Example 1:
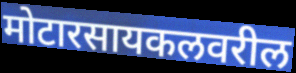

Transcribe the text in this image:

मोटारसायकलवरील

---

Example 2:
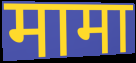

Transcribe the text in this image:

मामा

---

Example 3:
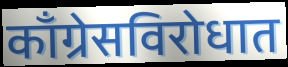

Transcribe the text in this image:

काँग्रेसविरोधात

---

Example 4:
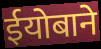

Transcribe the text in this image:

ईयोबाने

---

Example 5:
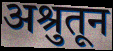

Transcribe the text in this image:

अश्रुतून